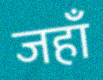
जहाँ